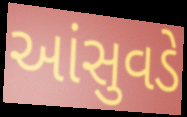
આંસુવડે